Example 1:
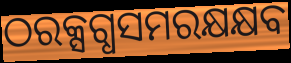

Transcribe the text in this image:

ଠରକ୍ସଗ୍ଧସମରକ୍ଷକ୍ଷବ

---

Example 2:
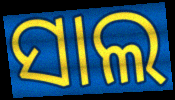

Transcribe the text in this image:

ସାଲ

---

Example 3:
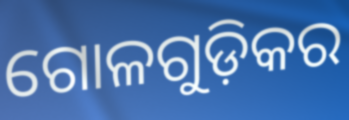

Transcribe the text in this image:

ଗୋଳଗୁଡ଼ିକର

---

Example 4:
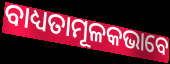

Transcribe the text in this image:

ବାଧ୍ୟତାମୂଳକଭାବେ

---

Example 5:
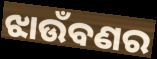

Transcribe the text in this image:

ଝାଉଁବଣର